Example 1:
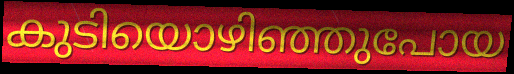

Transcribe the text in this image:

കുടിയൊഴിഞ്ഞുപോയ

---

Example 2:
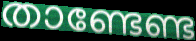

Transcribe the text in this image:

താണ്ടേണ്ട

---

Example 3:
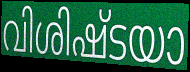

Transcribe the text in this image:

വിശിഷ്ടയാ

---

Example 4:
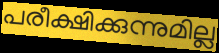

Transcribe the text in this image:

പരീക്ഷിക്കുന്നുമില്ല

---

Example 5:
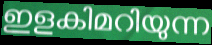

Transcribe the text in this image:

ഇളകിമറിയുന്ന